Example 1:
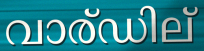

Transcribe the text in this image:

വാര്ഡില്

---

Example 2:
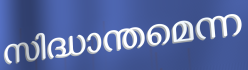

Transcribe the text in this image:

സിദ്ധാന്തമെന്ന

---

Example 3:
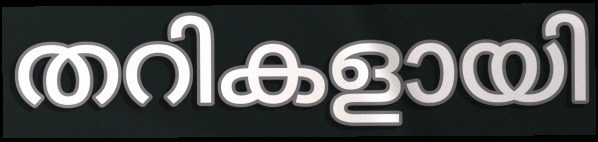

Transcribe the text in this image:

തറികളായി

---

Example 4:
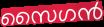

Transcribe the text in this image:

സൈഗൻ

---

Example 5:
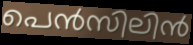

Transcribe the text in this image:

പെൻസിലിൻ